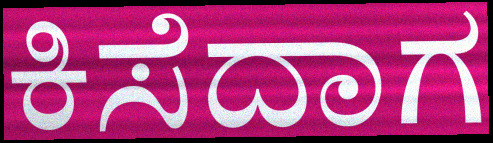
ಕಿಸೆದಾಗ